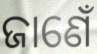
ଜାଣେଁ